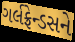
ગર્લફ્રેન્ડસને